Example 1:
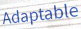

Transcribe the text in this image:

Adaptable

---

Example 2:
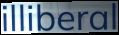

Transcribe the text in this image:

illiberal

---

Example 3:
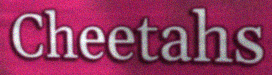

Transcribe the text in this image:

Cheetahs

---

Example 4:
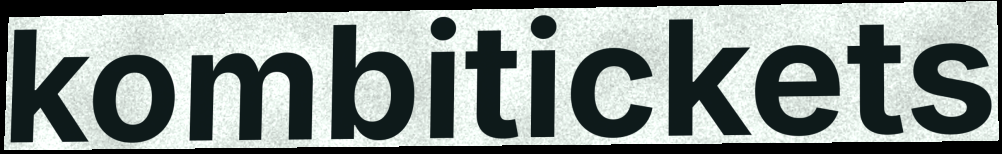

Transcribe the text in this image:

kombitickets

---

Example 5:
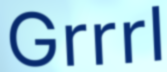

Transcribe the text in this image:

Grrrl